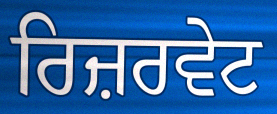
ਰਿਜ਼ਰਵੇਟ